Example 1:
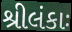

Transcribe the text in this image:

શ્રીલંકાઃ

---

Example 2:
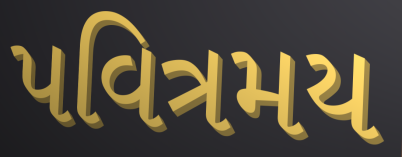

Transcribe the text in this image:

પવિત્રમય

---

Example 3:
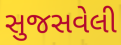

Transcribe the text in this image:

સુજસવેલી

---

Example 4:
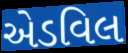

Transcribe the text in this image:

એડવિલ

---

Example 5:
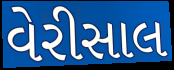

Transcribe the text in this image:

વેરીસાલ